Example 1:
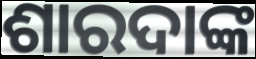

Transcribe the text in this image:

ଶାରଦାଙ୍କ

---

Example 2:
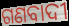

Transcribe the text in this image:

ଗଣବାଦୀ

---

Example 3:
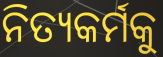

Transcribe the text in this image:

ନିତ୍ୟକର୍ମକୁ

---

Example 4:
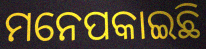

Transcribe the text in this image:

ମନେପକାଇଛି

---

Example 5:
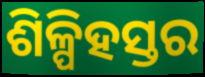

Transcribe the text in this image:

ଶିଳ୍ପିହସ୍ତର